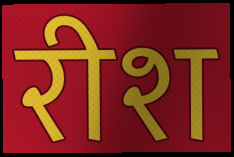
रीश